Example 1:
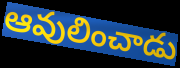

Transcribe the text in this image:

ఆవులించాడు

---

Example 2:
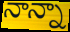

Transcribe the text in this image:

నాన్నా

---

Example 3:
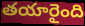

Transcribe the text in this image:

తయారైంది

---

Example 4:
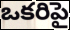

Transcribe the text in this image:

ఒకరిపై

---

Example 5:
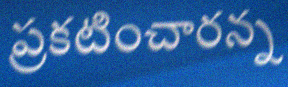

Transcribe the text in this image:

ప్రకటించారన్న